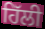
ਹਿੱਲੀ